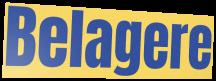
Belagere